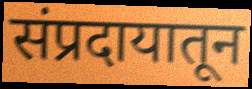
संप्रदायातून